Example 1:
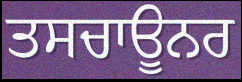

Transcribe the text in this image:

ਤਸਚਾਊਨਰ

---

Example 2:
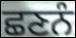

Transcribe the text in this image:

ਛਣਨੰ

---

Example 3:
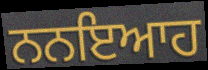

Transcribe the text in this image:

ਨਨਇਆਹ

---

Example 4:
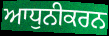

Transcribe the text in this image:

ਆਧੁਨੀਕਰਨ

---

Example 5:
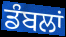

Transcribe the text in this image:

ਡੰਬਲਾਂ